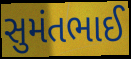
સુમંતભાઈ